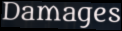
Damages